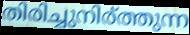
തിരിച്ചുനിര്ത്തുന്ന